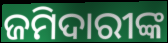
ଜମିଦାରୀଙ୍କ